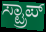
ಸ್ಟ್ರಾಪ್